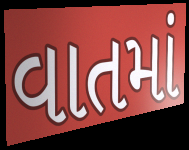
વાતમાં